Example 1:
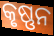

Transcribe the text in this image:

କୃଷ୍ଣନ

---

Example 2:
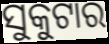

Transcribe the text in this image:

ସୁକୁଟାର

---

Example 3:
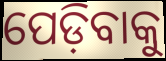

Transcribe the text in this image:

ପେଡ଼ିବାକୁ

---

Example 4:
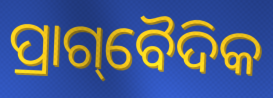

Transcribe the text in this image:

ପ୍ରାଗ୍‌ବୈଦିକ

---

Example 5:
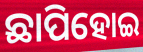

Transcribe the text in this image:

ଛାପିହୋଇ